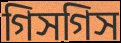
গিসগিস